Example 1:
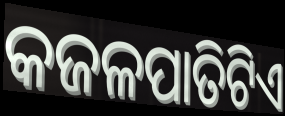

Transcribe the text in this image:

କଜଳପାତିଟିଏ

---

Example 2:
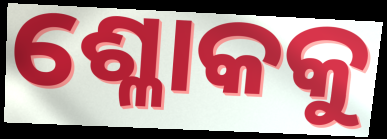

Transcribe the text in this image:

ଶ୍ଳୋକକୁ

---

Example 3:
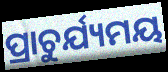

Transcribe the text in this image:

ପ୍ରାଚୁର୍ଯ୍ୟମୟ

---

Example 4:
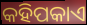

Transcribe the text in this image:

କହିପକାଏ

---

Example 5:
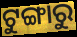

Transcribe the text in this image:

ଟୁଙ୍ଗାରୁ